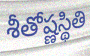
శీతోష్ణస్థితి